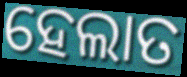
ହେଲାତ